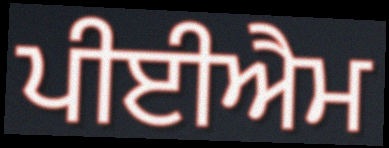
ਪੀਈਐਮ